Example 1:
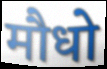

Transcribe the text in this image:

मौधो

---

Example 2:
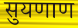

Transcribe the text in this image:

सुयणाण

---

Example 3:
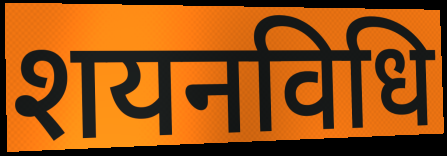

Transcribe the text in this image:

शयनविधि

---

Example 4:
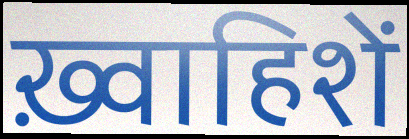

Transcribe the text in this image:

ख़्वाहिशें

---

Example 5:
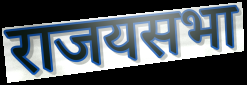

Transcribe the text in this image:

राजयसभा